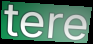
tere